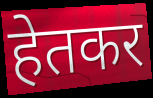
हेतकर